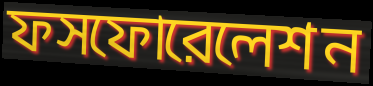
ফসফোরেলেশন